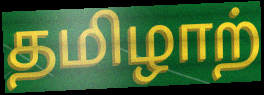
தமிழாற்